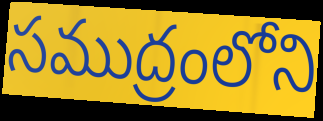
సముద్రంలోని